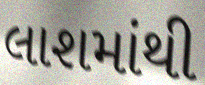
લાશમાંથી